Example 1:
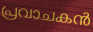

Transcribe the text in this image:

പ്രവാചകൻ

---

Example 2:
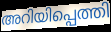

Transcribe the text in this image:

അറിയിപ്പെത്തി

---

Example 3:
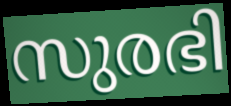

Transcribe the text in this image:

സുരഭി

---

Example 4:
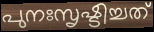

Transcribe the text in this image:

പുനഃസൃഷ്ടിച്ചത്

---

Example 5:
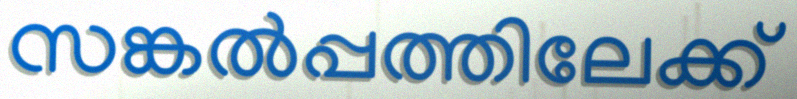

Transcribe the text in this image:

സങ്കൽപ്പത്തിലേക്ക്